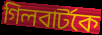
গিলবার্টকে